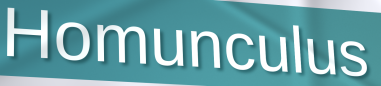
Homunculus